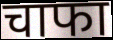
चाफा